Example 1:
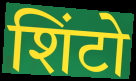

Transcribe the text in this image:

शिंटो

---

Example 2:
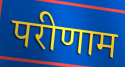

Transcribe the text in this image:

परीणाम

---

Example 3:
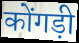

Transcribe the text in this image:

कोंगड़ी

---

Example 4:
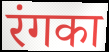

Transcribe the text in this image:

रंगका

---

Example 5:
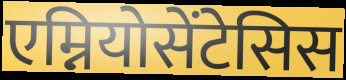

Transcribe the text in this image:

एम्नियोसेंटेसिस